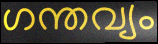
ഗന്തവ്യം